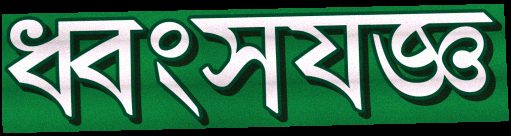
ধ্বংসযজ্ঞ